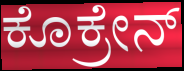
ಕೊಕ್ರೇನ್